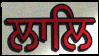
ਲਾਲਿ